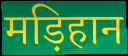
मड़िहान